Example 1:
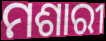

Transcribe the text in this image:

ମଶାରୀ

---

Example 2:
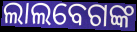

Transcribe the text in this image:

ଲାଲବେଗଙ୍କ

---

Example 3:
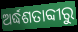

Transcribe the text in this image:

ଅର୍ଦ୍ଧଶତାବ୍ଦୀରୁ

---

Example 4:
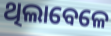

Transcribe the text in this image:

ଥିଲାବେଳେ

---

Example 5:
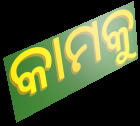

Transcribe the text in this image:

କାମକୁ